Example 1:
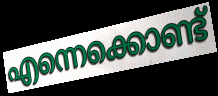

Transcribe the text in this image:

എന്നെക്കൊണ്ട്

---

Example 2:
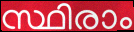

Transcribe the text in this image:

സ്ഥിരാം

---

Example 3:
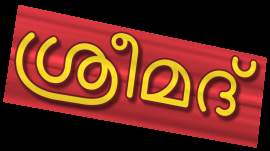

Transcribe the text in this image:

ശ്രീമദ്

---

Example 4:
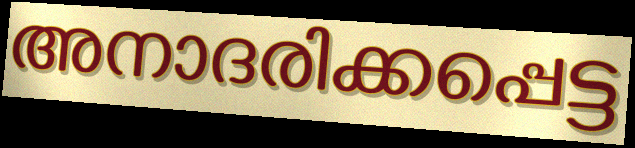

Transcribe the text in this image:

അനാദരിക്കപ്പെട്ട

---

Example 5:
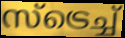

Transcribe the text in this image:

സ്ട്രെച്ച്